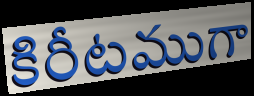
కిరీటముగా